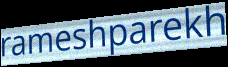
rameshparekh